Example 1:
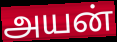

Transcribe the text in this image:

அயன்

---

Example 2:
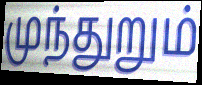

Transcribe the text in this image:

முந்துறும்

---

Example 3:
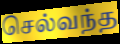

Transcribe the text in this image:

செல்வந்த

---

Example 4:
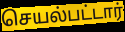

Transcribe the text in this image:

செயல்பட்டார்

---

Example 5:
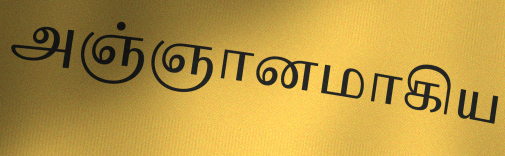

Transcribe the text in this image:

அஞ்ஞானமாகிய